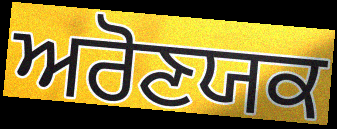
ਅਰੋਣਯਕ